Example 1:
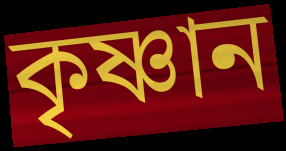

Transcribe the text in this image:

কৃষ্ণান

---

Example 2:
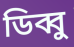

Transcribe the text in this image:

ডিব্বু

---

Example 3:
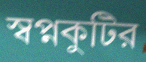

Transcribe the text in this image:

স্বপ্নকুটির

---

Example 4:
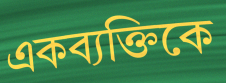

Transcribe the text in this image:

একব্যক্তিকে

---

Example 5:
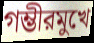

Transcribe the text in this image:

গম্ভীরমুখে